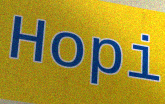
Hopi